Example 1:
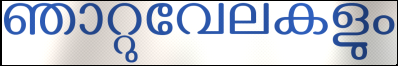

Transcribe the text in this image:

ഞാറ്റുവേലകളും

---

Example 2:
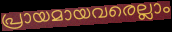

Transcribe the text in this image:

പ്രായമായവരെല്ലാം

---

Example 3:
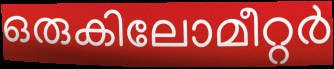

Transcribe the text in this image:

ഒരുകിലോമീറ്റർ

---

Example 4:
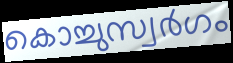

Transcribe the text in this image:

കൊച്ചുസ്വർഗം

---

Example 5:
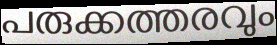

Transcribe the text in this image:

പരുക്കത്തരവും